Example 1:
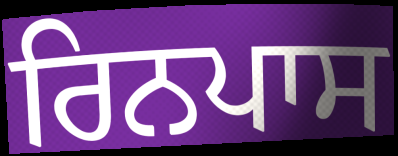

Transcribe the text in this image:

ਰਿਨਪਾਸ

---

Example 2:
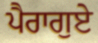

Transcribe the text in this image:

ਪੈਰਾਗੁਏ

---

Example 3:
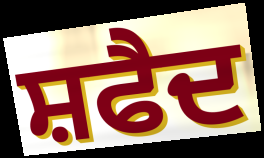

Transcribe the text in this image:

ਸ਼ਫੈਦ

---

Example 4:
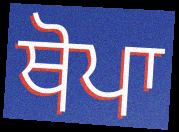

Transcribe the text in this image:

ਥੋਪਾ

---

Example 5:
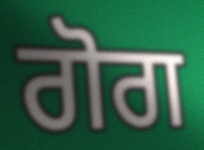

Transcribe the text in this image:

ਗੋਗ